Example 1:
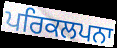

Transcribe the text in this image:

ਪਰਿਕਲਪਨਾ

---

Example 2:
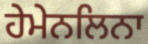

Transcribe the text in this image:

ਹੇਮੇਨਲਿਨਾ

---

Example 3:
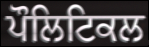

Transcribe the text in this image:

ਪੌਲਿਟਿਕਲ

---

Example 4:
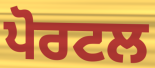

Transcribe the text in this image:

ਪੋਰਟਲ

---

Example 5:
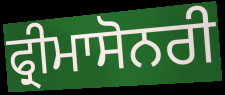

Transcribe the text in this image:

ਫ੍ਰੀਮਾਸੋਨਰੀ